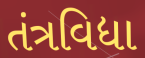
તંત્રવિદ્યા